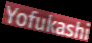
Yofukashi